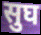
सुघ